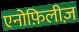
एनोफ़िलीज़